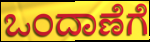
ಒಂದಾಣೆಗೆ